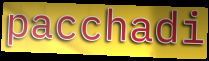
pacchadi